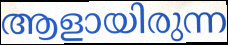
ആളായിരുന്ന